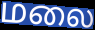
மலை